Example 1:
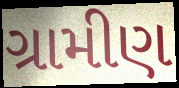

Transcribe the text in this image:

ગ્રામીણ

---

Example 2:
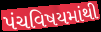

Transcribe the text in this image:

પંચવિષયમાંથી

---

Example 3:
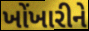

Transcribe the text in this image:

ખોંખારીને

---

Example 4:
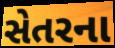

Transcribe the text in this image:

સેતરના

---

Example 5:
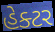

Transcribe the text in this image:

હેક્ટર